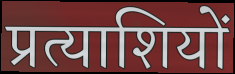
प्रत्‍याशियों